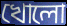
খোলো